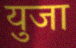
युजा